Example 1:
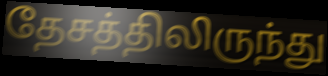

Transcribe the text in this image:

தேசத்திலிருந்து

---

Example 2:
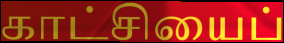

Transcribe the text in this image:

காட்சியைப்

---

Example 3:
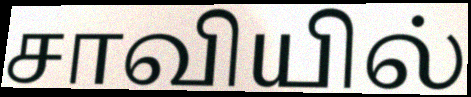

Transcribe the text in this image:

சாவியில்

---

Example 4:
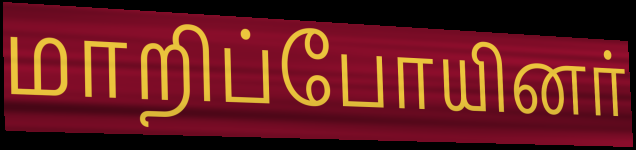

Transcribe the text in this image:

மாறிப்போயினர்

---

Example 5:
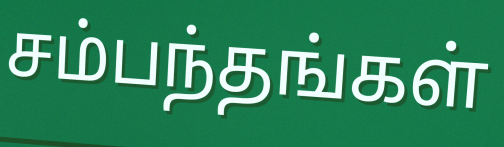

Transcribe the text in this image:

சம்பந்தங்கள்